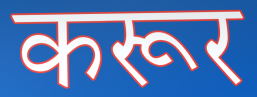
करूर